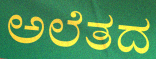
ಅಲೆತದ